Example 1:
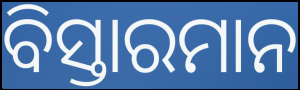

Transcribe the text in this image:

ବିସ୍ତାରମାନ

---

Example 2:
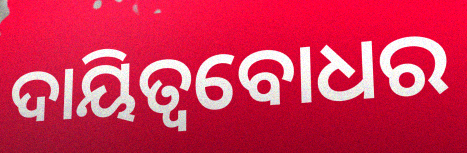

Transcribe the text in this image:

ଦାୟିତ୍ବବୋଧର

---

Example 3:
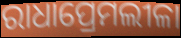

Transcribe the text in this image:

ରାଧାପ୍ରେମଲୀଳା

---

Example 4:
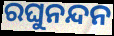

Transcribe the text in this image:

ରଘୁନନ୍ଦନ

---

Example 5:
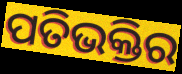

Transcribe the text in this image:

ପତିଭକ୍ତିର